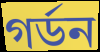
গর্ডন